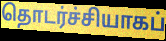
தொடர்ச்சியாகப்